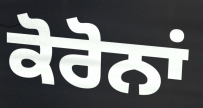
ਕੋਰੋਨਾਂ